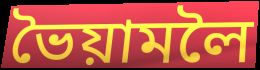
ভৈয়ামলৈ